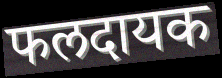
फलदायक